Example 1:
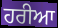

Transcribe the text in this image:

ਹਰੀਆ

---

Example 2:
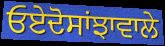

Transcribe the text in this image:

ਓਏਦੋਸਾਂਝਾਵਾਲੇ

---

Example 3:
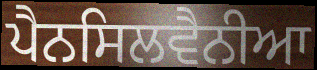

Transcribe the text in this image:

ਪੈਨਸਿਲਵੈਨੀਆ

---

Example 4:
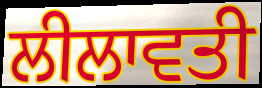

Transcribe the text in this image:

ਲੀਲਾਵਤੀ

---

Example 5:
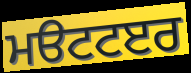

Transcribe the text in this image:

ਮੳਟਟੲਰ